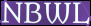
NBWL